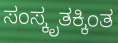
ಸಂಸ್ಕೃತಕ್ಕಿಂತ